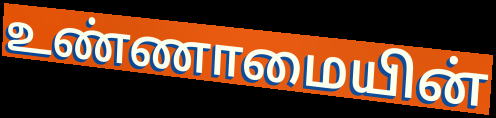
உண்ணாமையின்